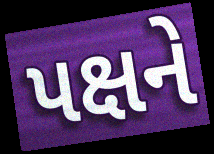
પક્ષને